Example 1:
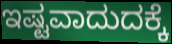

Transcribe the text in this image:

ಇಷ್ಟವಾದುದಕ್ಕೆ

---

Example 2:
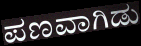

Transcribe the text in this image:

ಪಣವಾಗಿಡು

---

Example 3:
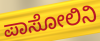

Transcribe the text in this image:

ಪಾಸೋಲಿನಿ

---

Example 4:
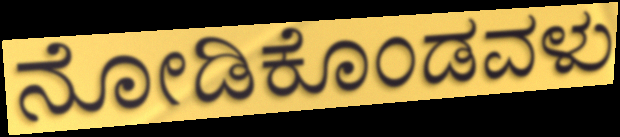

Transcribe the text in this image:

ನೋಡಿಕೊಂಡವಳು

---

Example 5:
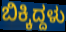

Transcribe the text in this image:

ಬಿಕ್ಕಿದ್ದಳು